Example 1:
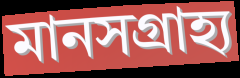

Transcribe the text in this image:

মানসগ্রাহ্য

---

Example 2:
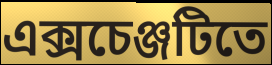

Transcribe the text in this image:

এক্সচেঞ্জটিতে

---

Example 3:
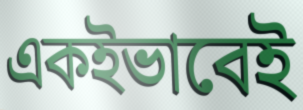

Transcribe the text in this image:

একইভাবেই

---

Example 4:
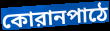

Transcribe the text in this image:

কোরানপাঠে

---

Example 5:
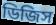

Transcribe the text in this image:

ডিজিস